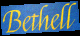
Bethell